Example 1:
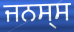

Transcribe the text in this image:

ਜਨਸ੍ਸ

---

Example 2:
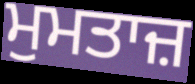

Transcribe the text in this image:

ਮੁਮਤਾਜ਼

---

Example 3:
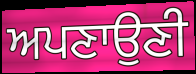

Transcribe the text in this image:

ਅਪਣਾਉਣੀ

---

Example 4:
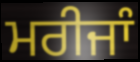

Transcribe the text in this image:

ਮਰੀਜਾੰ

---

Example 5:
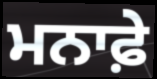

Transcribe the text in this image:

ਮਨਾਫ਼ੇ